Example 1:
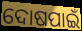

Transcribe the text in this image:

ଦୋଷପାଇଁ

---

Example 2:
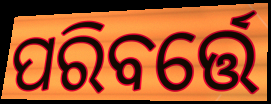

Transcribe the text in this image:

ପରିବର୍ତ୍ତେ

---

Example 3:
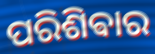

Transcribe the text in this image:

ପରିଶିଵାର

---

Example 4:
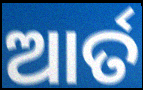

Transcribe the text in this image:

ଆର୍ତ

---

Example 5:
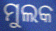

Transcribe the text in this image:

ମୁଲକ